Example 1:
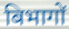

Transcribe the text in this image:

बिभागों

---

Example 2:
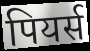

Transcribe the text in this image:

पियर्स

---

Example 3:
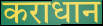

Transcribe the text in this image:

कराधान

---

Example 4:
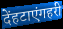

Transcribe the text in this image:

देंहटाएंगहरी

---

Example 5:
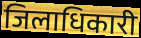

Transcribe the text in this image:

जिलाधिकारी